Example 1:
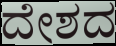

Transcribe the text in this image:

ದೇಶದ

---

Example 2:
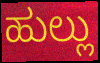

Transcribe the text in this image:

ಹುಲ್ಲು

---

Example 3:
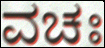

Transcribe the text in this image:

ವಚಃ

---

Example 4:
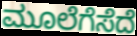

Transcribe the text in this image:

ಮೂಲೆಗೆಸೆದೆ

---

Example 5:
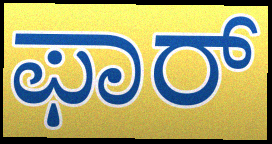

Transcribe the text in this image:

ಫಾರ್